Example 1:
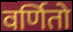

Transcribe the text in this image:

वर्णितो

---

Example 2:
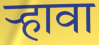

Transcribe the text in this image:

र्‍हावा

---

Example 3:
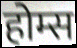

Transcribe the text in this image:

होम्स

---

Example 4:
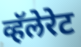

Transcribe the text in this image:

व्हॅलेरेट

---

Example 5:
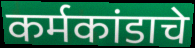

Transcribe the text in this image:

कर्मकांडाचे